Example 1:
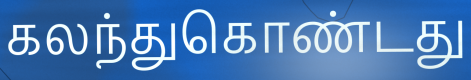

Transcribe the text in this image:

கலந்துகொண்டது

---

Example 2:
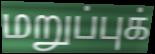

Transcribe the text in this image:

மறுப்புக்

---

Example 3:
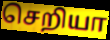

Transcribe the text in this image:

செறியா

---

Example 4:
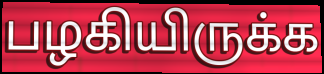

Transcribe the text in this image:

பழகியிருக்க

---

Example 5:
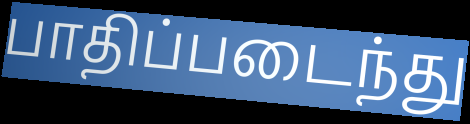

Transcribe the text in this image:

பாதிப்படைந்து